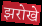
झरोखे